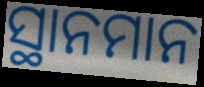
ସ୍ଥାନମାନ